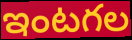
ఇంటగల